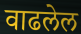
वाढलेल